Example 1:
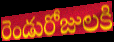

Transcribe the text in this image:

రెండురోజులకి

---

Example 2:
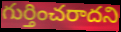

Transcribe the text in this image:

గుర్తించరాదని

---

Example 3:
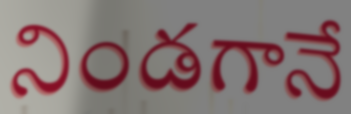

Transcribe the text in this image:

నిండగానే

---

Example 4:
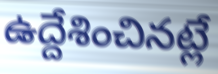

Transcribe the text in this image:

ఉద్దేశించినట్లే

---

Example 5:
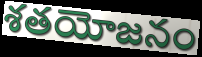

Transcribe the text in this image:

శతయోజనం